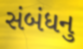
સંબંધનુ